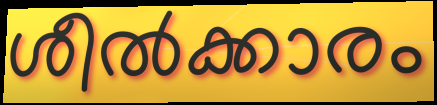
ശീൽക്കാരം